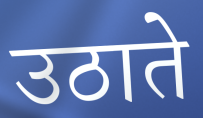
उठाते